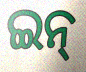
ଇନ୍